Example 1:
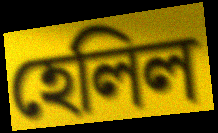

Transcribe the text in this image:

হেলিল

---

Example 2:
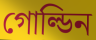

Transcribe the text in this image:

গোল্ডিন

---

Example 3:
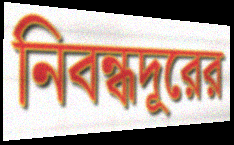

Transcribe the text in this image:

নিবন্ধদূরের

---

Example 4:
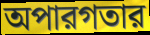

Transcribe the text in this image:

অপারগতার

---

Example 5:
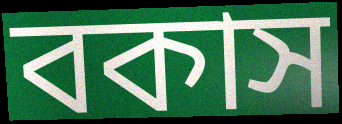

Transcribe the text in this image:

বকাস